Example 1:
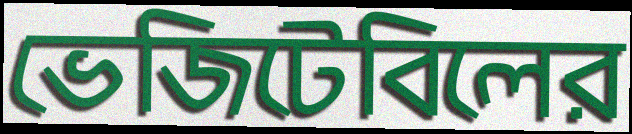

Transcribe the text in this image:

ভেজিটেবিলের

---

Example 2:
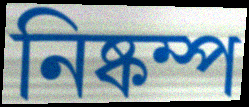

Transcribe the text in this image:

নিষ্কম্প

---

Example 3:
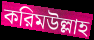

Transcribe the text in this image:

করিমউল্লাহ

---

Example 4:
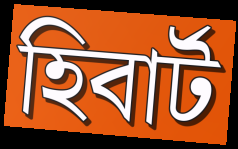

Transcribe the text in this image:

হিবার্ট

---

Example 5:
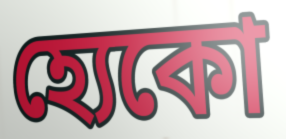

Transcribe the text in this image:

হ্যেকো